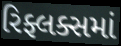
રિફ્લક્સમાં